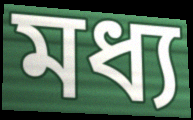
মধ্য